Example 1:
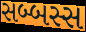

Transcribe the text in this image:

સબ્બસ્સ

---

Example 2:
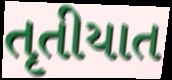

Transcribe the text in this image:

તૃતીયાત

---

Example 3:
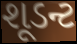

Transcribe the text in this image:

શૂડન્ટ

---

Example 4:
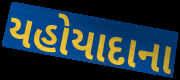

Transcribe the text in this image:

યહોયાદાના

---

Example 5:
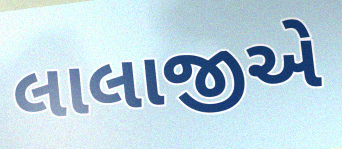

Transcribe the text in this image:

લાલાજીએ